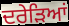
ਦਰੇੜਿਆਂ